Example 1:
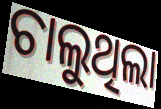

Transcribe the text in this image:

ଚାଲୁଥିଲା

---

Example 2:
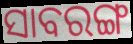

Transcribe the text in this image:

ସାବରଙ୍ଗ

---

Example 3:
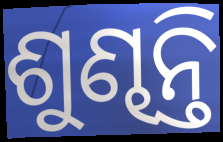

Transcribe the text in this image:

ଶୁଣ୍ଢନ୍ତି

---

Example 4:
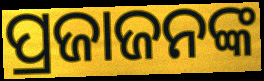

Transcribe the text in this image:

ପ୍ରଜାଜନଙ୍କ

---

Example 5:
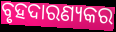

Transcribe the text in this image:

ବୃହଦାରଣ୍ୟକର